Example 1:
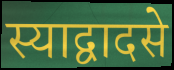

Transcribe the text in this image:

स्याद्वादसे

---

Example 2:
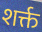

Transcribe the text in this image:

शर्क्त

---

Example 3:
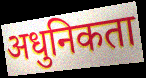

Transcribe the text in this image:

अधुनिकता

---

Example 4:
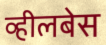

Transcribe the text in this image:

व्हीलबेस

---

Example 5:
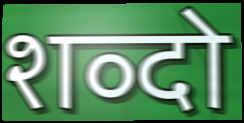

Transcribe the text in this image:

शव्दो